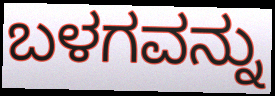
ಬಳಗವನ್ನು